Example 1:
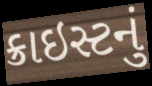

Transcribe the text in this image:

ક્રાઇસ્ટનું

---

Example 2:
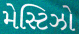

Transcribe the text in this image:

મેસ્ટિઝો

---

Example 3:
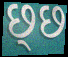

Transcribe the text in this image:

છ્છ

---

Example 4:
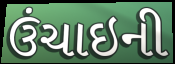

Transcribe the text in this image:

ઉંચાઇની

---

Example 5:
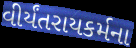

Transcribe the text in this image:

વીર્યંતરાયકર્મના